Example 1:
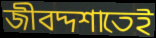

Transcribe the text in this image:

জীবদ্দশাতেই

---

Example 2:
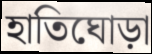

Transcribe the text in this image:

হাতিঘোড়া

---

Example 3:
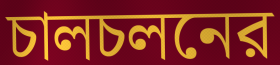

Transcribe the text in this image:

চালচলনের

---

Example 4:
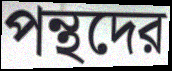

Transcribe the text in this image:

পন্থদের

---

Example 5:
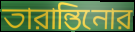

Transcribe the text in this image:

তারান্তিনোর